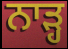
ਨਾੜ੍ਹ